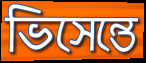
ভিসেন্তে